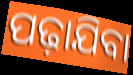
ପଢ଼ାଯିବା